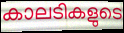
കാലടികളുടെ